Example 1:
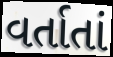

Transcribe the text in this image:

વર્તાતાં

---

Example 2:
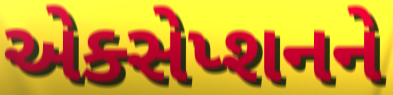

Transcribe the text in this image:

એક્સેપ્શનને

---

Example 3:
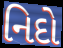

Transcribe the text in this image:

નિદો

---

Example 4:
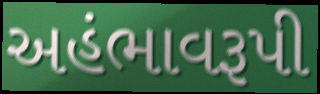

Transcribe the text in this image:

અહંભાવરૂપી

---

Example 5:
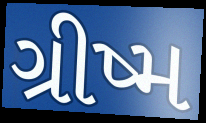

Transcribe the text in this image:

ગ્રીષ્મ